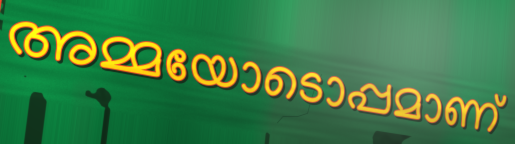
അമ്മയോടൊപ്പമാണ്